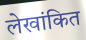
लेखांकित